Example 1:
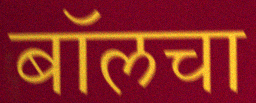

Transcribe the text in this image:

बॉलचा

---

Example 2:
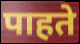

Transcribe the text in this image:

पाहते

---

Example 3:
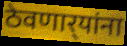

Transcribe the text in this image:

ठेवणार्‍यांना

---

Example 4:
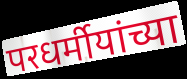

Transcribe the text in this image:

परधर्मीयांच्या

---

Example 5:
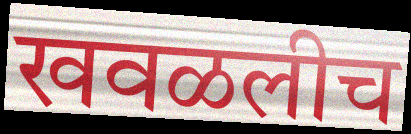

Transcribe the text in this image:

खवळलीच